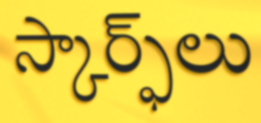
స్కార్ఫ్‌లు